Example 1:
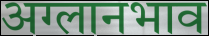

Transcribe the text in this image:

अग्लानभाव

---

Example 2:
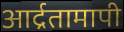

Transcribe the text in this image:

आर्द्रतामापी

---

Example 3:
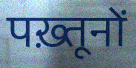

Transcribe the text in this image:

पख़्तूनों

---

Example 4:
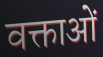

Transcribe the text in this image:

वक्ताओें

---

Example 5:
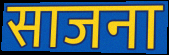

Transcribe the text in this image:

साजना